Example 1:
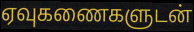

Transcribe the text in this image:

ஏவுகணைகளுடன்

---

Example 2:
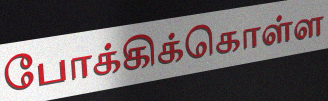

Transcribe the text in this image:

போக்கிக்கொள்ள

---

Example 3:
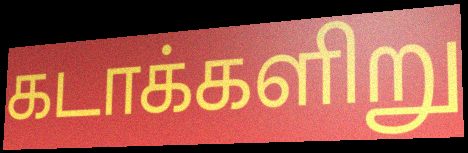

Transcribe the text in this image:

கடாக்களிறு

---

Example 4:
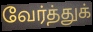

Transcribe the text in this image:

வேர்த்துக்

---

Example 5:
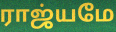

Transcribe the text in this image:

ராஜ்யமே